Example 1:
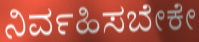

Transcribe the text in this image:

ನಿರ್ವಹಿಸಬೇಕೇ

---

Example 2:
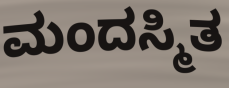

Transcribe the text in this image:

ಮಂದಸ್ಮಿತ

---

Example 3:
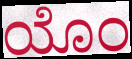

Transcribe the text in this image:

ಯೊಂ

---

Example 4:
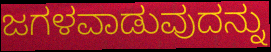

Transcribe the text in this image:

ಜಗಳವಾಡುವುದನ್ನು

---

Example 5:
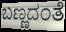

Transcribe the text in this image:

ಬಣ್ಣದಂತೆ